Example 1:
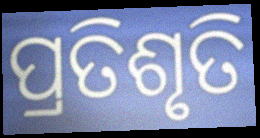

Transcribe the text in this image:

ପ୍ରତିଶୃତି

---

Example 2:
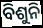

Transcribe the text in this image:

ବିଶୁନି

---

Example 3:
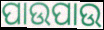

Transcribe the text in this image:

ପାଉପାଉ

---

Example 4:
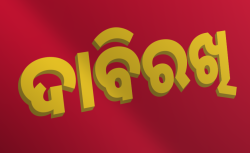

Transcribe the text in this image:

ଦାବିରଖି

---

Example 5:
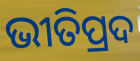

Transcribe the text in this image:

ଭୀତିପ୍ରଦ